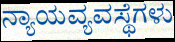
ನ್ಯಾಯವ್ಯವಸ್ಥೆಗಳು